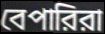
বেপারিরা